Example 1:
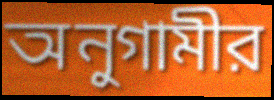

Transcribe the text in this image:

অনুগামীর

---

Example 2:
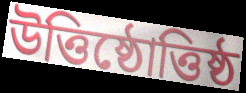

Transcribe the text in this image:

উত্তিষ্ঠোত্তিষ্ঠ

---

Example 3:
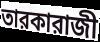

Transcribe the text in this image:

তারকারাজী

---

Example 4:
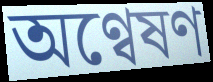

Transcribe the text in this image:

অণ্বেষণ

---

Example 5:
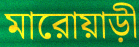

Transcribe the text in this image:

মারোয়াড়ী